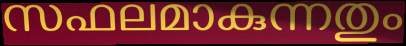
സഫലമാകുന്നതും